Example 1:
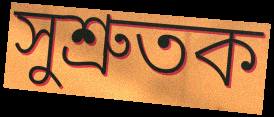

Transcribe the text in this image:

সুশ্ৰুতক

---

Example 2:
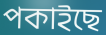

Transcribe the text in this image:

পকাইছে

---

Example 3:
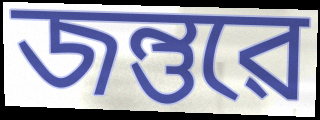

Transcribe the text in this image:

জন্তুৱে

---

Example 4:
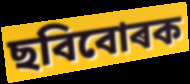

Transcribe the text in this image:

ছবিবোৰক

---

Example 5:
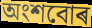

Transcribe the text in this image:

অংশবোৰ